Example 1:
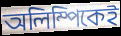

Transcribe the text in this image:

অলিম্পিকেই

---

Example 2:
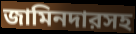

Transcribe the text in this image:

জামিনদারসহ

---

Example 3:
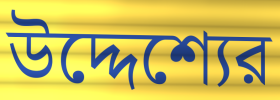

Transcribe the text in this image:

উদ্দেশ্যের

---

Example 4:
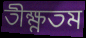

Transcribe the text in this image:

তীক্ষ্ণতম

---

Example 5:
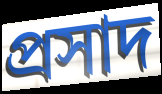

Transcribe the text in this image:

প্রসাদ